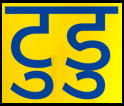
टुडु